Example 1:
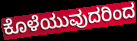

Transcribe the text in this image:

ಕೊಳೆಯುವುದರಿಂದ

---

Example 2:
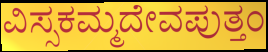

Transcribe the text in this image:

ವಿಸ್ಸಕಮ್ಮದೇವಪುತ್ತಂ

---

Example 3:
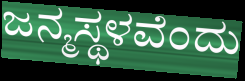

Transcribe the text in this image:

ಜನ್ಮಸ್ಥಳವೆಂದು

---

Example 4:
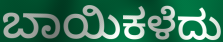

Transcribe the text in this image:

ಬಾಯಿಕಳೆದು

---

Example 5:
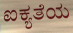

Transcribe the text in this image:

ಐಕ್ಯತೆಯ